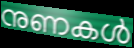
നുണകൾ